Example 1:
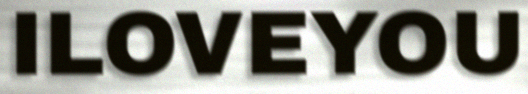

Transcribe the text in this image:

ILOVEYOU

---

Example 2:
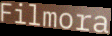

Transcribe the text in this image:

Filmora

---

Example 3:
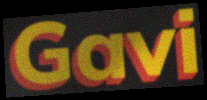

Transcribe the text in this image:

Gavi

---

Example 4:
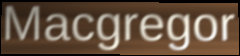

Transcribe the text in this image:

Macgregor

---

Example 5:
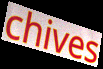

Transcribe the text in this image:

chives